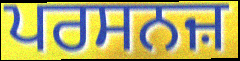
ਪਰਸਨਜ਼